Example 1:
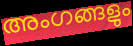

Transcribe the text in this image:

അംഗങ്ങളും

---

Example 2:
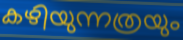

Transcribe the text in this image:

കഴിയുന്നത്രയും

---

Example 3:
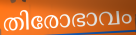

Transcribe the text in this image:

തിരോഭാവം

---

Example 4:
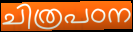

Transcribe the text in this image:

ചിത്രപഠന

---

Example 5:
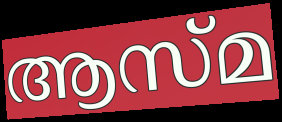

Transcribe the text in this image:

ആസ്മ